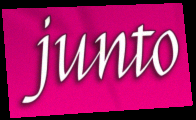
junto